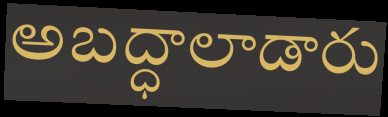
అబద్ధాలాడారు